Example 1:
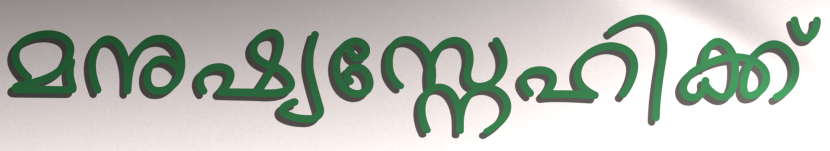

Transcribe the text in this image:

മനുഷ്യസ്നേഹിക്ക്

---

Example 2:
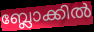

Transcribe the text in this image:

ബ്ലോക്കിൽ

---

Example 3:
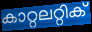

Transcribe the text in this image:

കാറ്റലറ്റിക്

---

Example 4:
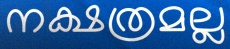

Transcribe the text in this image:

നക്ഷത്രമല്ല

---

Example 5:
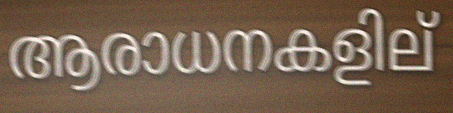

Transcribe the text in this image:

ആരാധനകളില്